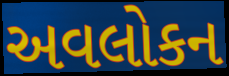
અવલોકન